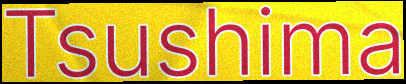
Tsushima